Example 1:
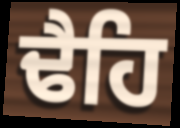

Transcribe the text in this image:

ਢੈਹਿ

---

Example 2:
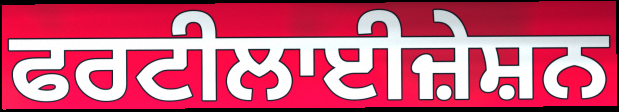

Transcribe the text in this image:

ਫਰਟੀਲਾਈਜ਼ੇਸ਼ਨ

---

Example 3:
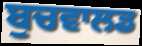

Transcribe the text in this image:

ਬੁਚਵਾਲਡ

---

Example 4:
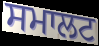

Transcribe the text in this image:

ਸਮਾਲਟ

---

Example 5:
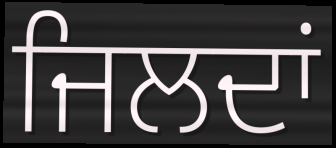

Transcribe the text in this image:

ਜਿਲਦਾਂ